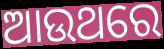
ଆଉଥରେ